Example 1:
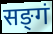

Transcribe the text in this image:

सङ्गं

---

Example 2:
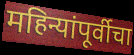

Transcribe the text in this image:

महिन्यांपूर्वीचा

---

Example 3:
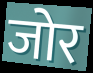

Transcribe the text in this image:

जोर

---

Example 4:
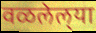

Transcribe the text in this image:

वळलेल्या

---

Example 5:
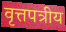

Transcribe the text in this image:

वृत्तपत्रीय